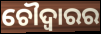
ଚୌଦ୍ୱାରର